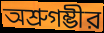
অশ্রুগম্ভীর